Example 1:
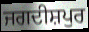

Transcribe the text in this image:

ਜਗਦੀਸ਼ਪੁਰ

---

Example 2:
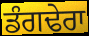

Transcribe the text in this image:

ਡੰਗਢੇਰਾ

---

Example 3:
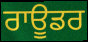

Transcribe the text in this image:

ਰਾਊਡਰ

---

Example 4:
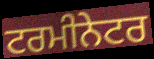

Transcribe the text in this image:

ਟਰਮੀਨੇਟਰ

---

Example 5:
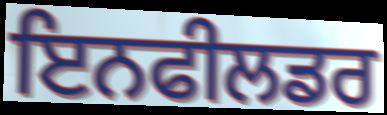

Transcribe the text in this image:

ਇਨਫੀਲਡਰ